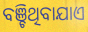
ବଞ୍ଚିଥିବାଯାଏ